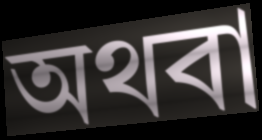
অথবা